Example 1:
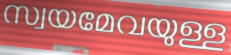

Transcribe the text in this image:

സ്വയമേവയുള്ള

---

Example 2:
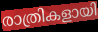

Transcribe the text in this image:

രാത്രികളായി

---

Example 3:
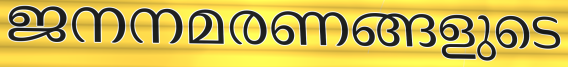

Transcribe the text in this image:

ജനനമരണങ്ങളുടെ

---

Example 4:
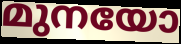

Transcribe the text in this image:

മുനയോ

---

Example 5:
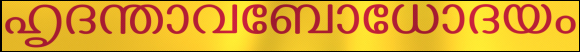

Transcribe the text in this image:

ഹൃദന്താവബോധോദയം